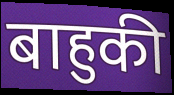
बाहुकी